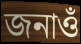
জনাওঁ